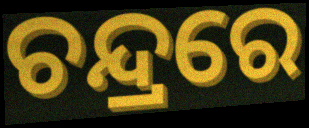
ଚନ୍ଦ୍ରରେ